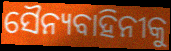
ସୈନ୍ୟବାହିନୀକୁ